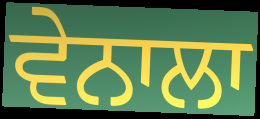
ਵੇਨਾਲਾ